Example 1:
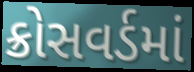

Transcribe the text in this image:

ક્રોસવર્ડમાં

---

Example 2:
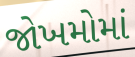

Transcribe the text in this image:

જોખમોમાં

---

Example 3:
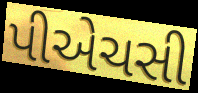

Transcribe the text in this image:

પીએચસી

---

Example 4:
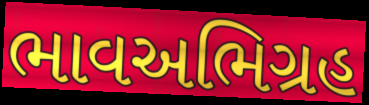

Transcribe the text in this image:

ભાવઅભિગ્રહ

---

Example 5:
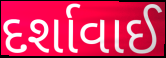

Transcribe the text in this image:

દર્શાવાઈ